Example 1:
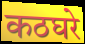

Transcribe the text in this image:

कठघरे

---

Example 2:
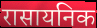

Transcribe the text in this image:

रासायनिक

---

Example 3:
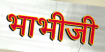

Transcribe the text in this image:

भाभीजी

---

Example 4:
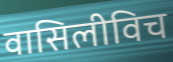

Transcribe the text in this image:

वासिलीविच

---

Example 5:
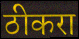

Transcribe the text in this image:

ठीकरा